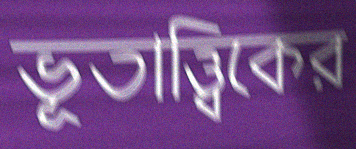
ভূতাত্ত্বিকের